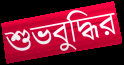
শুভবুদ্ধির